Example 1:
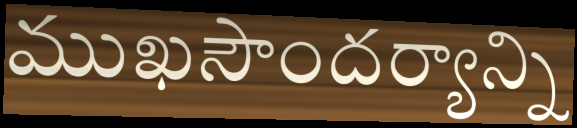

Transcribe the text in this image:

ముఖసౌందర్యాన్ని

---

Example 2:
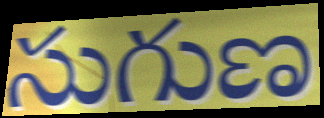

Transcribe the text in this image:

సుగుణ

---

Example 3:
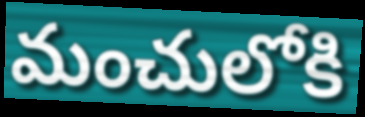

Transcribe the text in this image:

మంచులోకి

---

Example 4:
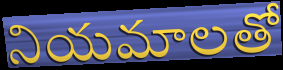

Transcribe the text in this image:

నియమాలతో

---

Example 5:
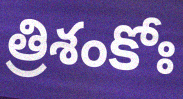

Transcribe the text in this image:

త్రిశంకోః